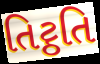
તિટ્ઠતિ